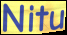
Nitu